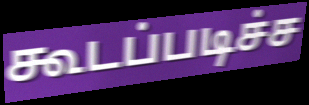
கூடப்படிச்ச